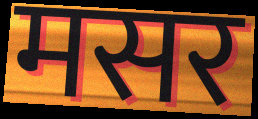
मसर